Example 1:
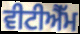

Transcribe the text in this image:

ਵੀਟੀਐੱਮ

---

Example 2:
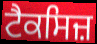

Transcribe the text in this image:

ਟੈਕਸਿਜ਼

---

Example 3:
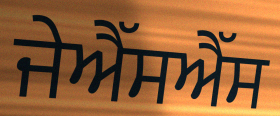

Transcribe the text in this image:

ਜੇਐੱਸਐੱਸ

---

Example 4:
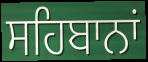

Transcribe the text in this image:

ਸਹਿਬਾਨਾਂ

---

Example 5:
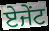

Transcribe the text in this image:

ਏਜੇਂਟ